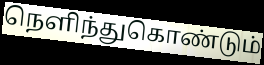
நெளிந்துகொண்டும்